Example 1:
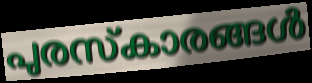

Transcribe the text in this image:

പുരസ്‌കാരങ്ങൾ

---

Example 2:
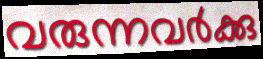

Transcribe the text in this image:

വരുന്നവർക്കു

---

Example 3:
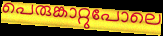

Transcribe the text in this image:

പെരുങ്കാറ്റുപോലെ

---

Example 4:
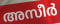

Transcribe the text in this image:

അസീർ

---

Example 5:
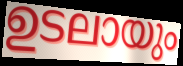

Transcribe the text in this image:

ഉടലായും